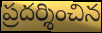
ప్రదర్శించిన